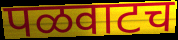
पळवाटच